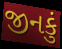
જીનકું